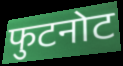
फुटनोट